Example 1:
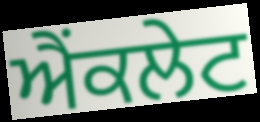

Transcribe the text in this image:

ਐਂਕਲੇਟ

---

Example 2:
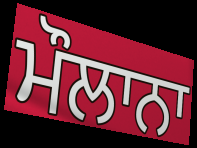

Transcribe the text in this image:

ਮੌਲਾਨਾ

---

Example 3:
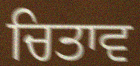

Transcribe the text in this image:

ਚਿਤਾਵ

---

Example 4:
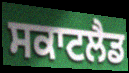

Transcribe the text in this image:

ਸਕਾਟਲੈਡ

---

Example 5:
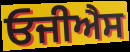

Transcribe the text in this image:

ਓਜੀਐਸ